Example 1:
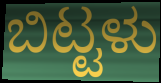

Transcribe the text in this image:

ಬಿಟ್ಟಳು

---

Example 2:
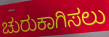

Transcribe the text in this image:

ಚುರುಕಾಗಿಸಲು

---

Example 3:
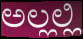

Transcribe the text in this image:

ಅಲ್ಲಲ್ಲಿ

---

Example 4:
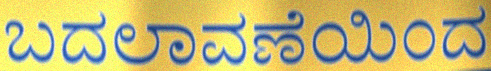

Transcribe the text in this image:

ಬದಲಾವಣೆಯಿಂದ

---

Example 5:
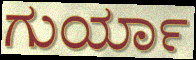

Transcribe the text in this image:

ಗುರ್ಯಾ